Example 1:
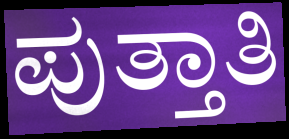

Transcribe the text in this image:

ಪುತ್ತಾತಿ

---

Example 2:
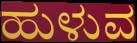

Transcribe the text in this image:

ಹುಳುವ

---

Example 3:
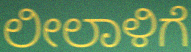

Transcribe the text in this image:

ಲೀಲಾಳಿಗೆ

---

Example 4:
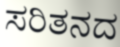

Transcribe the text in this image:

ಸರಿತನದ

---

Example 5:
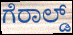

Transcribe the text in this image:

ಗೆರಾಲ್ಡ್